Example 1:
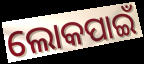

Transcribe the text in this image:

ଲୋକପାଇଁ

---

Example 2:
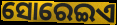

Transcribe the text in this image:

ସୋରେଇଏ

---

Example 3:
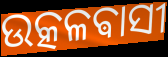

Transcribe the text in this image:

ଉତ୍କଳଵାସୀ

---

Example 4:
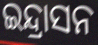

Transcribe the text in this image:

ଇନ୍ଦ୍ରାସନ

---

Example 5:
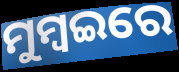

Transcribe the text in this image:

ମୁମ୍ବଇରେ